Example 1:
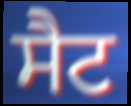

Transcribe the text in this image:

ਸੈਟ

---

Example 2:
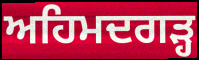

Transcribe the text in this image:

ਅਹਿਮਦਗੜ੍ਹ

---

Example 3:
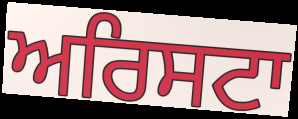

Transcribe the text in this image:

ਅਰਿਸਟਾ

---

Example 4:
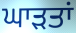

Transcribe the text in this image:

ਘਾਡ਼ਤਾਂ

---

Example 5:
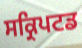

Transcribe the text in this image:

ਸਕ੍ਰਿਪਟਡ